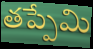
తప్పేమి